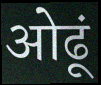
ओढूं